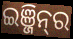
ଇଞ୍ଜିନ୍‌ର